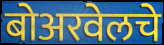
बोअरवेलचे